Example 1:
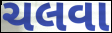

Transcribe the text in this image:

ચલવા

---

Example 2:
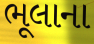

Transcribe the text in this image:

ભૂલાના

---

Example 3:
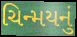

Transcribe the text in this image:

ચિન્મયનું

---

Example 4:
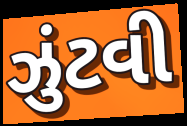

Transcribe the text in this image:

ઝુંટવી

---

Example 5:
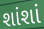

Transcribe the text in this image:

શાંશાં